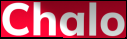
Chalo